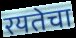
रयतेचा